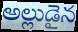
అల్లుడైన